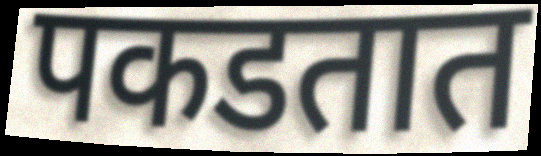
पकडतात